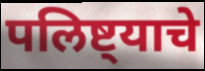
पलिष्ट्याचे